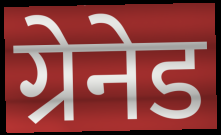
ग्रेनेड